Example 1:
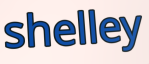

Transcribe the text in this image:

shelley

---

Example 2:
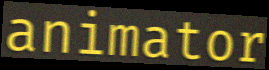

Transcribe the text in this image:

animator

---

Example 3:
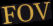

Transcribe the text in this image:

FOV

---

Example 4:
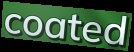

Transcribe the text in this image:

coated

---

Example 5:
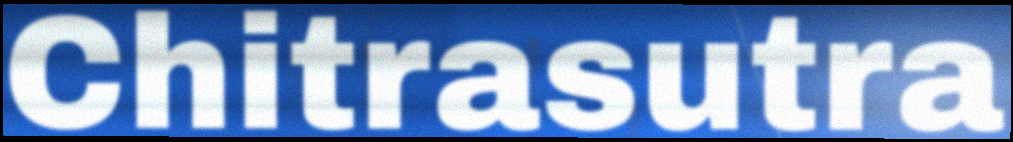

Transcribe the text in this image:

Chitrasutra